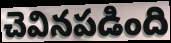
చెవినపడింది